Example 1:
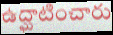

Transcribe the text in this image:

ఉద్ఘాటించారు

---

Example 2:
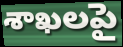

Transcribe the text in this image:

శాఖలపై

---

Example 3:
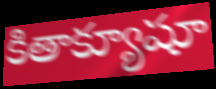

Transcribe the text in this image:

కితాక్యూషూ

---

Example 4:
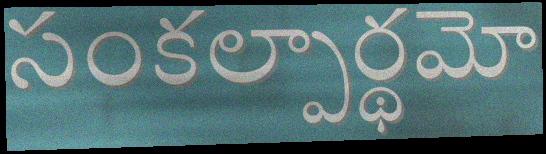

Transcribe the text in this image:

సంకల్పార్థమో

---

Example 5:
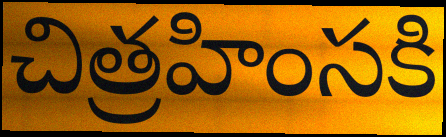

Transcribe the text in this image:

చిత్రహింసకి